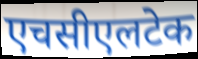
एचसीएलटेक